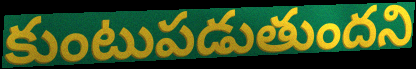
కుంటుపడుతుందని